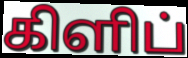
கிளிப்